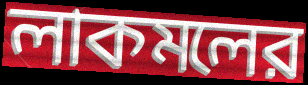
লাকমলের